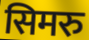
सिमरु